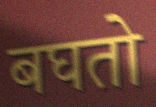
बघतो